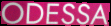
ODESSA